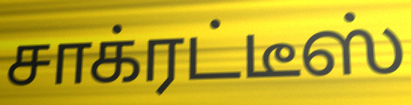
சாக்ரட்டீஸ்